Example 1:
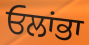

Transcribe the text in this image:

ਓਲਾਂਭਾ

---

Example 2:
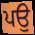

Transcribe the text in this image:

ਪਉ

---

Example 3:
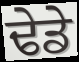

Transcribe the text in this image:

ਢੇਡੇ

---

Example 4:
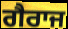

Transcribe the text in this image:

ਗੈਰਾਜ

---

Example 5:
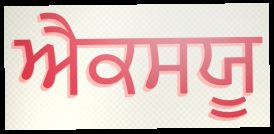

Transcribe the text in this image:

ਐਕਸਯੂ